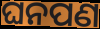
ଘନପଣ